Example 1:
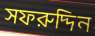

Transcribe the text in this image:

সফরুদ্দিন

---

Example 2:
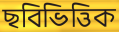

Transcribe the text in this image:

ছবিভিত্তিক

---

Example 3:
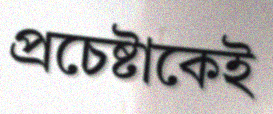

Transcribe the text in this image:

প্রচেষ্টাকেই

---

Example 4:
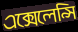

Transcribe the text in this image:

এক্সেলেন্সি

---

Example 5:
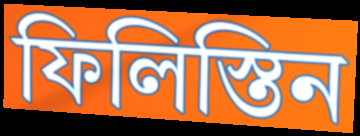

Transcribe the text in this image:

ফিলিস্তিন